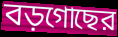
বড়গোছের